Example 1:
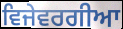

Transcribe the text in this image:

ਵਿਜੇਵਰਗੀਆ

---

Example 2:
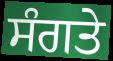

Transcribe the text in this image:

ਸੰਗਤੇ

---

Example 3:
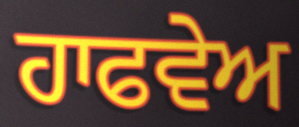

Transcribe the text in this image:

ਹਾਫਵੇਅ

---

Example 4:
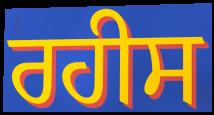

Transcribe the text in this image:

ਰਹੀਸ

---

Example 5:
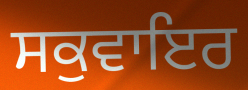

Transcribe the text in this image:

ਸਕੁਵਾਇਰ